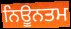
ਨਿਊਨਤਮ